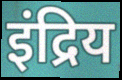
इंद्रिय